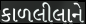
કાળલીલાને